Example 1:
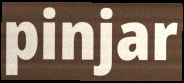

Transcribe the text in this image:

pinjar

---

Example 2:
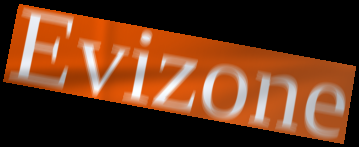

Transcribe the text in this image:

Evizone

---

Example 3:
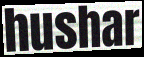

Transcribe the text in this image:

hushar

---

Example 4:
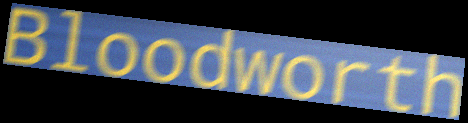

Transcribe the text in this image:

Bloodworth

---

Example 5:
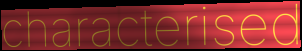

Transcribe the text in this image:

characterised